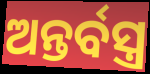
ଅନ୍ତର୍ବସ୍ତ୍ର